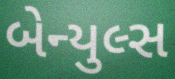
બેન્યુલ્સ